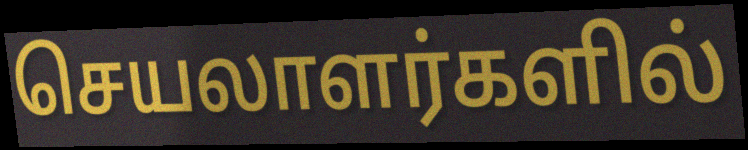
செயலாளர்களில்